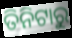
ତିନିଟାରୁ